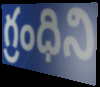
గ్రంధిని